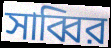
সাব্বির